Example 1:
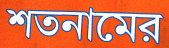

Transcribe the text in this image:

শতনামের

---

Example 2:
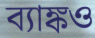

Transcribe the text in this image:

ব্যাঙ্কও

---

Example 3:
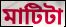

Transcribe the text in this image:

মাটিটা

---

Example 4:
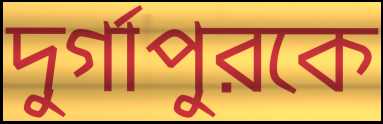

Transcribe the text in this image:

দুর্গাপুরকে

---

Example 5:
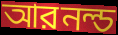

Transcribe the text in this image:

আরনল্ড